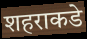
शहराकडे